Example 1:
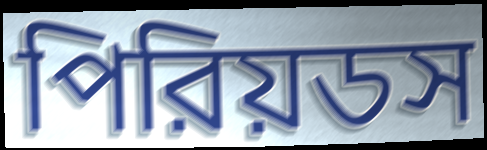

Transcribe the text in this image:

পিরিয়ডস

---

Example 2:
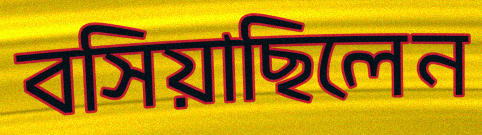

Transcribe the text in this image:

বসিয়াছিলেন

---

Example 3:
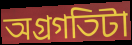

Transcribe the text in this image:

অগ্রগতিটা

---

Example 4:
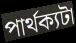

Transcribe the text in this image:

পার্থক্যটা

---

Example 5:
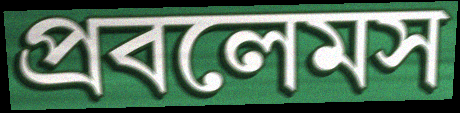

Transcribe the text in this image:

প্রবলেমস